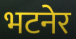
भटनेर